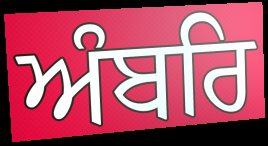
ਅੰਬਰਿ